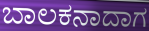
ಬಾಲಕನಾದಾಗ